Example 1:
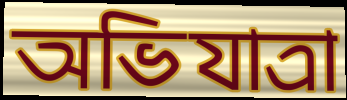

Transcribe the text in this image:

অভিযাত্রা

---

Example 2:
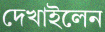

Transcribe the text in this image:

দেখাইলেন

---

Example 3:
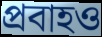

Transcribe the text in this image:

প্রবাহও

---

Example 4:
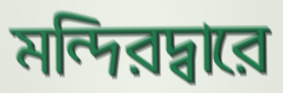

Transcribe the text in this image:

মন্দিরদ্বারে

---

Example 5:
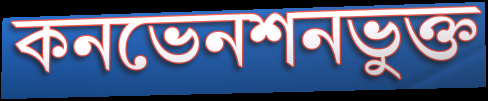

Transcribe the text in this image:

কনভেনশনভুক্ত